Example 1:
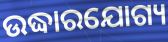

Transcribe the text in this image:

ଉଦ୍ଧାରଯୋଗ୍ୟ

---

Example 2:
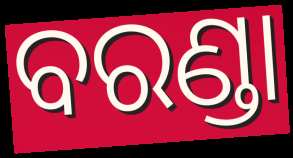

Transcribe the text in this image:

ବରଣ୍ଡା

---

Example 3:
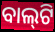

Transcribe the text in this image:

ବାଲ୍‍ଟି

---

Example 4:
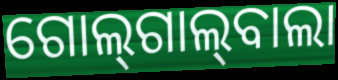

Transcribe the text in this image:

ଗୋଲ୍‍ଗାଲ୍‍ବାଲା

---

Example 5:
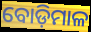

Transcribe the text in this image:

ବୋଡ଼ିମାଳ